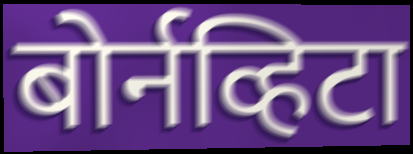
बोर्नव्हिटा